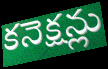
కనెక్షన్లు